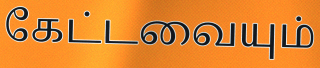
கேட்டவையும்